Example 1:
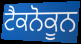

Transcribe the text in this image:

ਟੈਕਨੋਕੂਨ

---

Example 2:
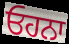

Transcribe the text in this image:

ਓਹਨਾ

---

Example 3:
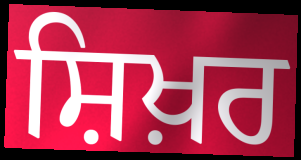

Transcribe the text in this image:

ਸ਼ਿਖ਼ਰ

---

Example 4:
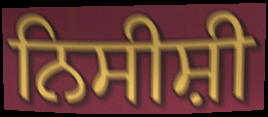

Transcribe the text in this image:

ਨਿਸੀਸ਼ੀ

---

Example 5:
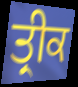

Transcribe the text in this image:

ਤ੍ਰੀਕ